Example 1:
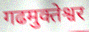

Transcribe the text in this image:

गढमुक्तेश्वर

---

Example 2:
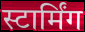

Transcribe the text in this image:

स्टार्मिंग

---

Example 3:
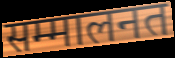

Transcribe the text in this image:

सम्मालनत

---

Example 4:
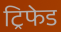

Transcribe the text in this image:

ट्रिफेड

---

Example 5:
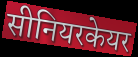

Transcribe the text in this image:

सीनियरकेयर